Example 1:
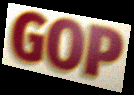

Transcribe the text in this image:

GOP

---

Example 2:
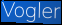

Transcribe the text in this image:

Vogler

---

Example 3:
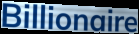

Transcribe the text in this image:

Billionaire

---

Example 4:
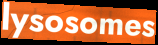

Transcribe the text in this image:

lysosomes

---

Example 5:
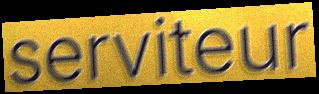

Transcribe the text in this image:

serviteur